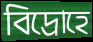
বিদ্রোহে